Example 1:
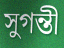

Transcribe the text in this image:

সুগন্তী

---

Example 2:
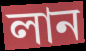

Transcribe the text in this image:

লান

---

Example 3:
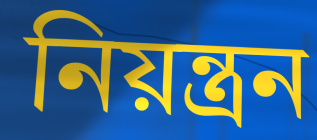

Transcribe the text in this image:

নিয়ন্ত্ৰন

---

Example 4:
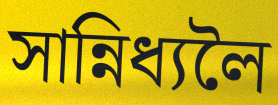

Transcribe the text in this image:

সান্নিধ্যলৈ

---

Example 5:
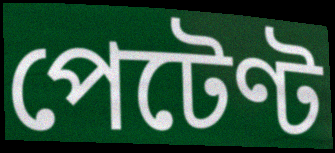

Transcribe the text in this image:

পেটেণ্ট